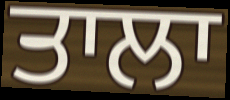
ਤਾਲਾ